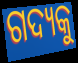
ଗଦ୍ୟକୁ